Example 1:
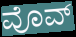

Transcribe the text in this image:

ವೊವ್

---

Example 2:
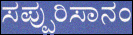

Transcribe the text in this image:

ಸಪ್ಪುರಿಸಾನಂ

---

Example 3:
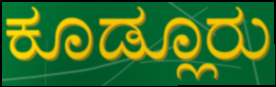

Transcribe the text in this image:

ಕೂಡ್ಲೂರು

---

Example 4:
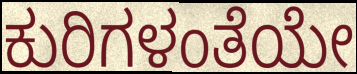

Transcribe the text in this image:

ಕುರಿಗಳಂತೆಯೇ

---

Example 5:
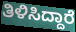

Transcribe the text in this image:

ತಿಳಿಸಿದ್ದಾರೆ